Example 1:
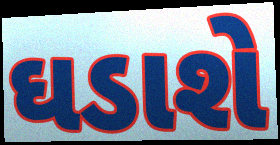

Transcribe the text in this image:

ઘડાશે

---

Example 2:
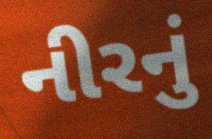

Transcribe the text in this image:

નીરનું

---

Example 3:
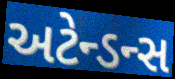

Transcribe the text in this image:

અટેન્ડન્સ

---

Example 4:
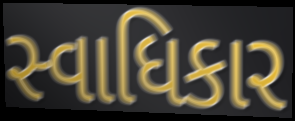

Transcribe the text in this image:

સ્વાધિકાર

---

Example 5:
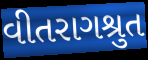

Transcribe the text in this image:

વીતરાગશ્રુત